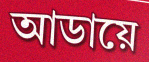
আডায়ে